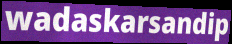
wadaskarsandip